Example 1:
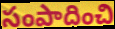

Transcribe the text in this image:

సంపాదించి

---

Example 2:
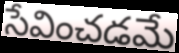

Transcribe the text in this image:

సేవించడమే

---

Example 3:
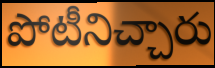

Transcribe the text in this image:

పోటీనిచ్చారు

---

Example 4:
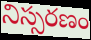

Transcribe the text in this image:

నిస్సరణం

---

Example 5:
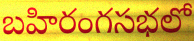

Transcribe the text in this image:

బహిరంగసభలో